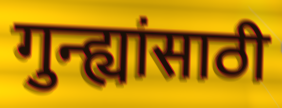
गुन्ह्यांसाठी